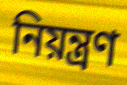
নিয়ন্ত্রণ